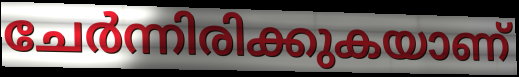
ചേർന്നിരിക്കുകയാണ്